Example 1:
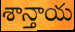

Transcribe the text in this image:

శాన్తాయ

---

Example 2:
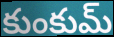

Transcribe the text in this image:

కుంకుమ్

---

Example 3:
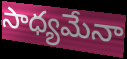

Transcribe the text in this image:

సాధ్యమేనా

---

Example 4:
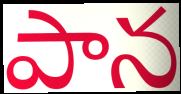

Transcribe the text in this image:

పాన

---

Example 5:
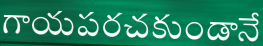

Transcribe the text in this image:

గాయపరచకుండానే